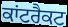
ਕਾਂਟਰੈਕਟ